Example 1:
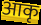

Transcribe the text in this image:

आकृ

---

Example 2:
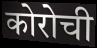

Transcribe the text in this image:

कोरोची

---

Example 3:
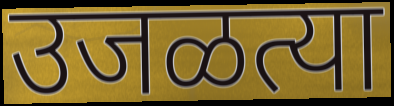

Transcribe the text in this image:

उजळत्या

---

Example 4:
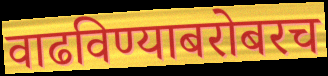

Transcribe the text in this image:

वाढविण्याबरोबरच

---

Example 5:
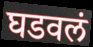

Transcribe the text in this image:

घडवलं